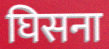
घिसना